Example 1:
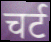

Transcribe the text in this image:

चर्ट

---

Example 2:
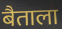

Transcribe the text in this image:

बैताला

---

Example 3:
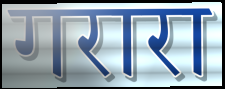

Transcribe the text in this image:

गरारा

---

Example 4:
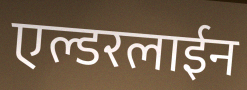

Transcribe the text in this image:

एल्डरलाईन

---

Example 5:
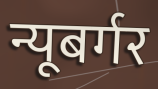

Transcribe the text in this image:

न्यूबर्गर